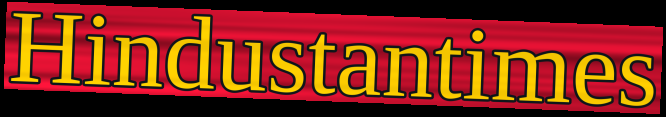
Hindustantimes